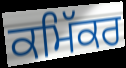
ਕਮਿੱਕਰ